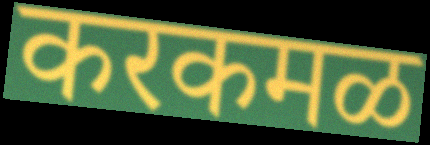
करकमळ